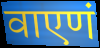
वाएणं